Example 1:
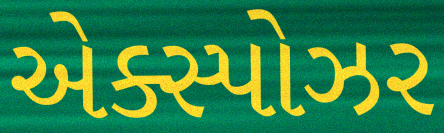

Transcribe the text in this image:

એક્સ્પોઝર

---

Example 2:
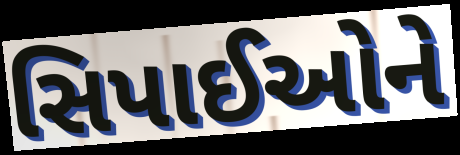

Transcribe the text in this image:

સિપાઈઓને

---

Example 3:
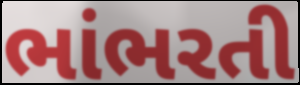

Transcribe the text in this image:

ભાંભરતી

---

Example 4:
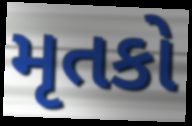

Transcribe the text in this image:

મૃતકો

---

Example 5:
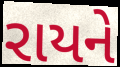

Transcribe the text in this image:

રાયને